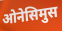
ओनेसिमुस